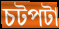
চটপটা